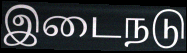
இடைநடு